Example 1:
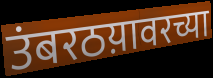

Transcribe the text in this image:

उंबरठय़ावरच्या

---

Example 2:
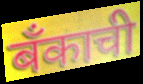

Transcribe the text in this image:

बँकाची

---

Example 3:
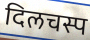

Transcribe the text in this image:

दिलचस्प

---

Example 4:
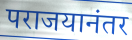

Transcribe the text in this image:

पराजयानंतर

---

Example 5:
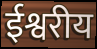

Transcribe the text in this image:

ईश्वरीय